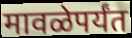
मावळेपर्यंत